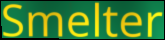
Smelter